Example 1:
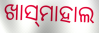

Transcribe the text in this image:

ଖାସ୍‌ମାହାଲ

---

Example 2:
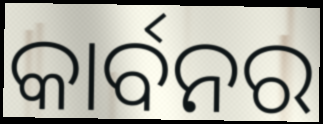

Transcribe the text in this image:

କାର୍ବନର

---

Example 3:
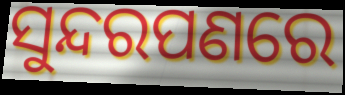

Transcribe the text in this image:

ସୁନ୍ଦରପଣରେ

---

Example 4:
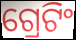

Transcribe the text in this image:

ଗ୍ରେଟିଂ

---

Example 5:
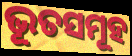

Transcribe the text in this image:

ଭୂତସମୂହ